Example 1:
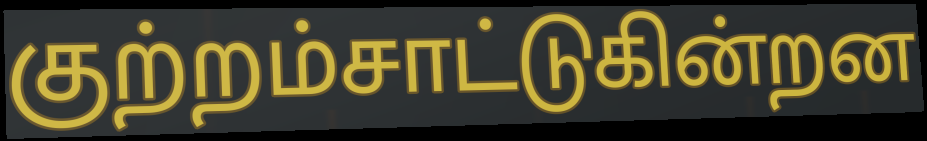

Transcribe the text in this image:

குற்றம்சாட்டுகின்றன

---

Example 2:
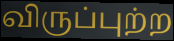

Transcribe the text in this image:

விருப்புற்ற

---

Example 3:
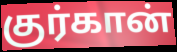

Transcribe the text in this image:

குர்கான்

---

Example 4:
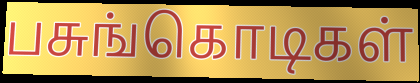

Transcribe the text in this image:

பசுங்கொடிகள்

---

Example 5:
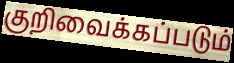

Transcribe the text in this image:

குறிவைக்கப்படும்